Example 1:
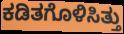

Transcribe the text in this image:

ಕಡಿತಗೊಳಿಸಿತ್ತು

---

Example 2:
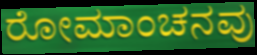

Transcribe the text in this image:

ರೋಮಾಂಚನವು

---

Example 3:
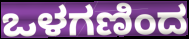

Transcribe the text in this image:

ಒಳಗಣಿಂದ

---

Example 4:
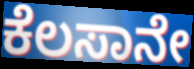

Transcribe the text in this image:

ಕೆಲಸಾನೇ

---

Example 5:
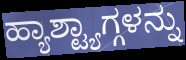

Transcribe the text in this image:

ಹ್ಯಾಶ್ಟ್ಯಾಗ್ಗಳನ್ನು